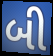
બી